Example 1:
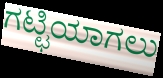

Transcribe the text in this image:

ಗಟ್ಟಿಯಾಗಲು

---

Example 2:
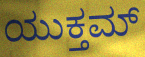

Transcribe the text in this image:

ಯುಕ್ತಮ್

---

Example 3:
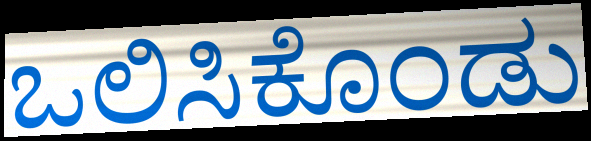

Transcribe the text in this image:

ಒಲಿಸಿಕೊಂಡು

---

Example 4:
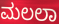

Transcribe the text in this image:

ಮಲಲಾ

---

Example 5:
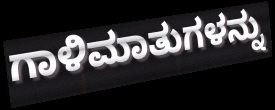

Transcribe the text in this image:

ಗಾಳಿಮಾತುಗಳನ್ನು